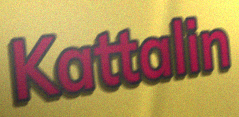
Kattalin